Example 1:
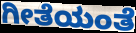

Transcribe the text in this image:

ಗೀತೆಯಂತೆ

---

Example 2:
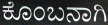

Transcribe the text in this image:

ಕೊಂಬನಾಗಿ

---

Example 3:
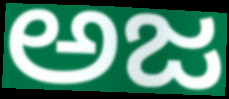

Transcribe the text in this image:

ಅಜ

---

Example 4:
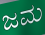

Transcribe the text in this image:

ಜಮ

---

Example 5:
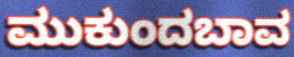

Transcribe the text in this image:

ಮುಕುಂದಬಾವ